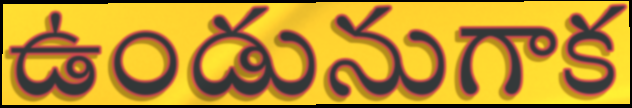
ఉండునుగాక